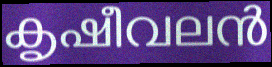
കൃഷീവലൻ